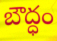
బౌద్ధం